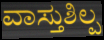
ವಾಸ್ತುಶಿಲ್ಪ